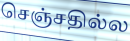
செஞ்சதில்ல